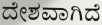
ದೇಶವಾಗಿದೆ